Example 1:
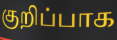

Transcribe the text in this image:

குறிப்பாக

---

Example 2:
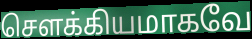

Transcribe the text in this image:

சௌக்கியமாகவே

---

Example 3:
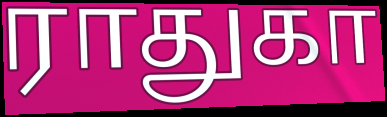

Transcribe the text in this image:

ராதுகா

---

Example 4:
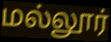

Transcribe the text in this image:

மல்லூர்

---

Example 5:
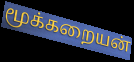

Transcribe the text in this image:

மூக்கறையன்